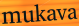
mukava